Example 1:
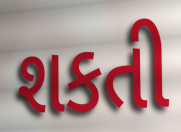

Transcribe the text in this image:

શકતી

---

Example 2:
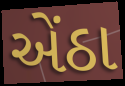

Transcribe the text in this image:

એંઠા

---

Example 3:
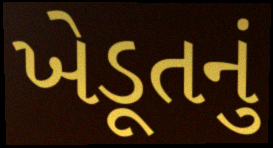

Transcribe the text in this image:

ખેડૂતનું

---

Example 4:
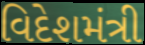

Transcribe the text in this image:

વિદેશમંત્રી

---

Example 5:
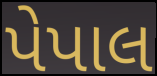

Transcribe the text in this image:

પેપાલ